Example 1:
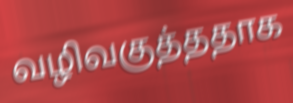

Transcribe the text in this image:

வழிவகுத்ததாக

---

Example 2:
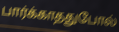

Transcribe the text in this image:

பார்க்காததுபோல்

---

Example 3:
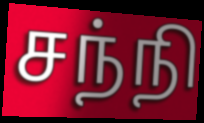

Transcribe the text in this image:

சந்நி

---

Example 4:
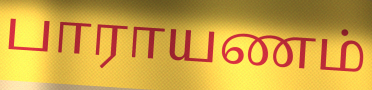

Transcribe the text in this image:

பாராயணம்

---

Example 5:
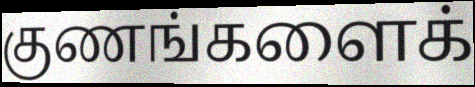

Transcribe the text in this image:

குணங்களைக்